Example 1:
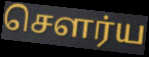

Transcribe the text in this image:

சௌர்ய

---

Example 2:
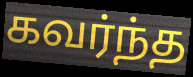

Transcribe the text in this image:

கவர்ந்த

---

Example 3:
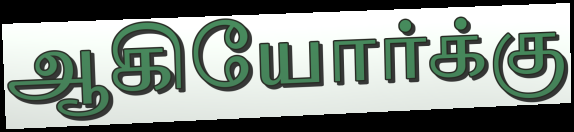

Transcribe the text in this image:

ஆகியோர்க்கு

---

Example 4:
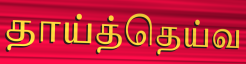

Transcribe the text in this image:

தாய்த்தெய்வ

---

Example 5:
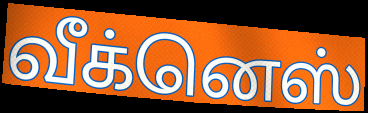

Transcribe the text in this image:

வீக்னெஸ்